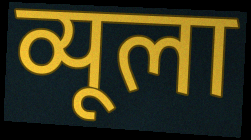
व्यूला